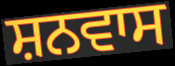
ਸ਼ਨਵਾਸ